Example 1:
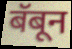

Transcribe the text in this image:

बॅबून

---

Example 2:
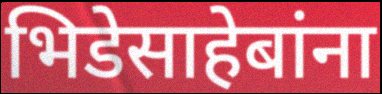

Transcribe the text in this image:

भिडेसाहेबांना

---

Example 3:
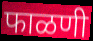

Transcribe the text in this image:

फाळणी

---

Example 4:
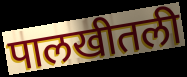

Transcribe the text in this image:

पालखीतली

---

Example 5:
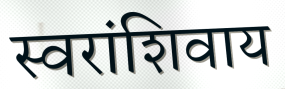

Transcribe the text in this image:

स्वरांशिवाय